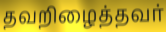
தவறிழைத்தவர்